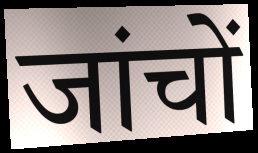
जांचों